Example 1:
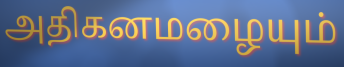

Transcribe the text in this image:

அதிகனமழையும்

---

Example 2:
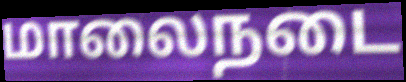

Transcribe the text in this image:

மாலைநடை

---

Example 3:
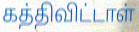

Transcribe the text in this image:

கத்திவிட்டாள்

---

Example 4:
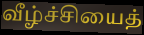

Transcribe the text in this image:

வீழ்ச்சியைத்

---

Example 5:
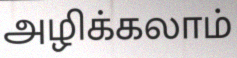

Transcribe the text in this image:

அழிக்கலாம்